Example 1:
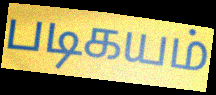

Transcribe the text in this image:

படிகயம்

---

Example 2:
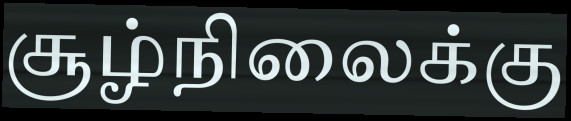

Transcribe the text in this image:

சூழ்நிலைக்கு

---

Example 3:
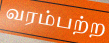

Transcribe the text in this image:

வரம்பற்ற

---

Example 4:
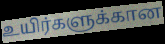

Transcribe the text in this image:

உயிர்களுக்கான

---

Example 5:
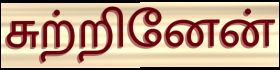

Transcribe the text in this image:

சுற்றினேன்